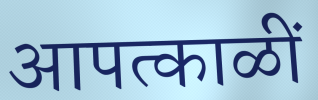
आपत्काळीं